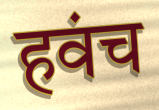
हवंच